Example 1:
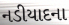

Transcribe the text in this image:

નડીયાદના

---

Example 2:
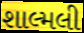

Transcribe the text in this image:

શાલ્મલી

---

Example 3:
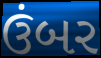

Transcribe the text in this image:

ઉંબર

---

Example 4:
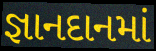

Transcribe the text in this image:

જ્ઞાનદાનમાં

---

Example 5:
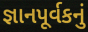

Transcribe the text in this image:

જ્ઞાનપૂર્વકનું